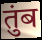
तुंब